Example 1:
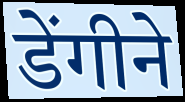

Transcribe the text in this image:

डेंगीने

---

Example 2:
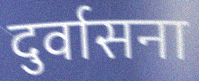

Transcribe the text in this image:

दुर्वासना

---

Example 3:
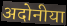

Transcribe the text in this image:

अदोनीया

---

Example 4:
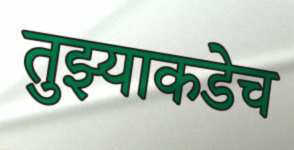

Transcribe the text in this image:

तुझ्याकडेच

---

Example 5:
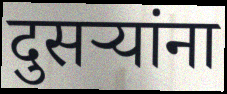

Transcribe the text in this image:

दुसऱ्यांना